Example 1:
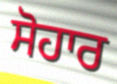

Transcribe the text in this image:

ਸੋਹਾਰ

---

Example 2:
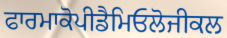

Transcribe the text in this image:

ਫਾਰਮਾਕੋਪੀਡੈਮਿਓਲੋਜੀਕਲ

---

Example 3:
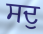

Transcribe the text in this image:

ਸਦੁ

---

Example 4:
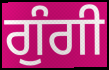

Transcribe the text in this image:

ਗੁੰਗੀ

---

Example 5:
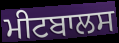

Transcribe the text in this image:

ਮੀਟਬਾਲਸ